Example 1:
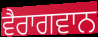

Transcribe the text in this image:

ਵੈਰਾਗਵਾਨ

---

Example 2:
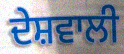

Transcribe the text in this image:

ਦੇਸ਼ਵਾਲੀ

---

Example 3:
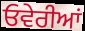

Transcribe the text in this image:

ਓਵੇਰੀਆਂ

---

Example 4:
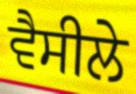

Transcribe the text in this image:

ਵੈਸੀਲੇ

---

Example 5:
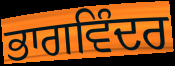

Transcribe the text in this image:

ਭਾਗਵਿੰਦਰ